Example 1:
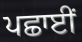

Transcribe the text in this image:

ਪਛਾਈਂ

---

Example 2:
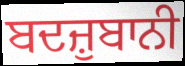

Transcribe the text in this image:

ਬਦਜ਼ੁਬਾਨੀ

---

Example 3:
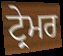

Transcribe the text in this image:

ਟ੍ਰੇਮਰ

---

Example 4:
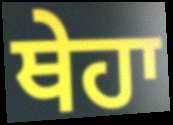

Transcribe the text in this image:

ਥੇਹਾ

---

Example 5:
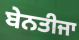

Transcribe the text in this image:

ਬੇਨਤੀਜਾ